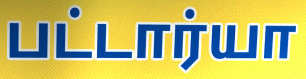
பட்டார்யா